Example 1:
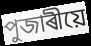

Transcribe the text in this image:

পুজাৰীয়ে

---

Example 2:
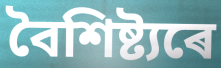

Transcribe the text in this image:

বৈশিষ্ট্যৰে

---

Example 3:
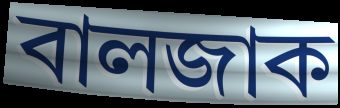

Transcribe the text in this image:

বালজাক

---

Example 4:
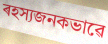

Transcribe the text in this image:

ৰহস্যজনকভাৱে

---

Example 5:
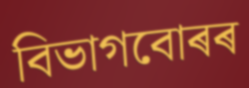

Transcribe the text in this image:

বিভাগবোৰৰ